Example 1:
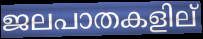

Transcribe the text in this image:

ജലപാതകളില്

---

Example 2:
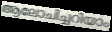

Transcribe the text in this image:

ആലോചിച്ചറിയാം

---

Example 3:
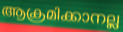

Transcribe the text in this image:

ആക്രമിക്കാനല്ല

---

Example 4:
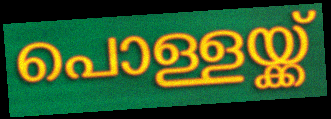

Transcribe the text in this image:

പൊള്ളയ്ക്ക്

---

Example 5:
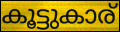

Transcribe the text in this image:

കൂട്ടുകാര്